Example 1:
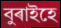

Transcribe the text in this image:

বুৰাইহে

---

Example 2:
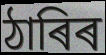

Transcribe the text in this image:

ঠাৰিৰ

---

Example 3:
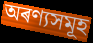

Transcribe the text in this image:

অৰণ্যসমূহ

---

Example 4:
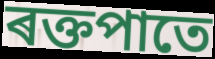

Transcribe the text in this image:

ৰক্তপাতে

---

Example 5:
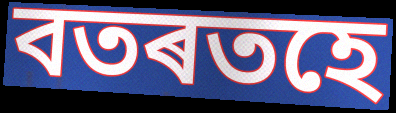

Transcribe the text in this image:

বতৰতহে